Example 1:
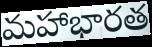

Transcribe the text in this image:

మహాభారత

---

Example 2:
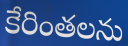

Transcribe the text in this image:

కేరింతలను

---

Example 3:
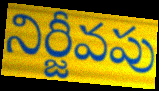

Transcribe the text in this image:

నిర్జీవపు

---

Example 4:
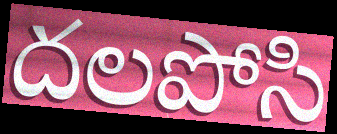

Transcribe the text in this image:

దలపోసి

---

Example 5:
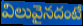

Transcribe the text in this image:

విలువైనదంటే